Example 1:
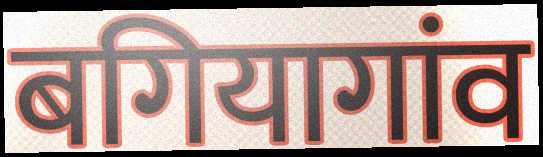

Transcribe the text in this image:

बगियागांव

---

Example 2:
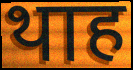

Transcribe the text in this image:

थाह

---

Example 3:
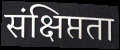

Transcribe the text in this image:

संक्षिप्तता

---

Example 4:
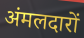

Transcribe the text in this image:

अंमलदारों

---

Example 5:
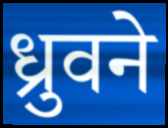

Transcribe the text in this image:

ध्रुवने